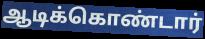
ஆடிக்கொண்டார்